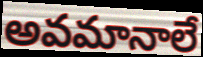
అవమానాలే